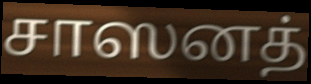
சாஸனத்